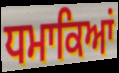
ਧਮਾਕਿਆਂ